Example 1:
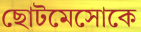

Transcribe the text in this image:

ছোটমেসোকে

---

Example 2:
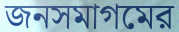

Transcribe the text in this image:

জনসমাগমের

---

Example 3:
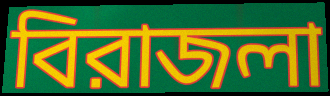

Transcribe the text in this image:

বিরাজলা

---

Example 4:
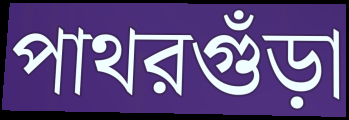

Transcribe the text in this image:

পাথরগুঁড়া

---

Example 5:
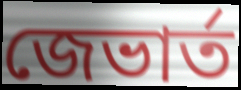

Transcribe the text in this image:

জেভার্ত